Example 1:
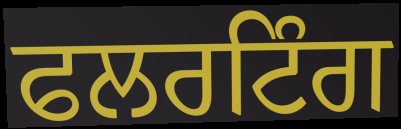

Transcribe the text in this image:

ਫਲਰਟਿੰਗ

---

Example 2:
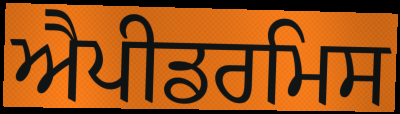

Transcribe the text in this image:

ਐਪੀਡਰਮਿਸ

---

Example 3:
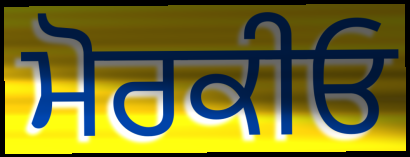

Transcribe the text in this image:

ਮੋਰਕੀਓ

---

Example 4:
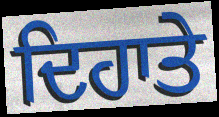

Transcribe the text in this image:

ਦਿਹਾਤੇ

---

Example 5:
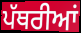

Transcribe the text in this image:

ਪੱਥਰੀਆਂ